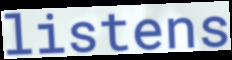
listens